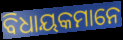
ବିଧାୟକମାନେ